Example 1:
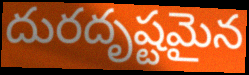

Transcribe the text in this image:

దురదృష్టమైన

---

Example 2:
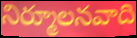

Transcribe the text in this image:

నిర్మూలనవాది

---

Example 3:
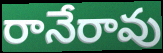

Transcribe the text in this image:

రానేరావు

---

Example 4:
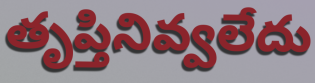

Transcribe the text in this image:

తృప్తినివ్వలేదు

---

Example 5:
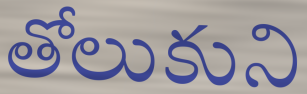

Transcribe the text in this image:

తోలుకుని